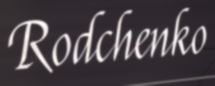
Rodchenko